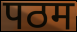
पठम